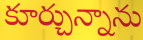
కూర్చున్నాను